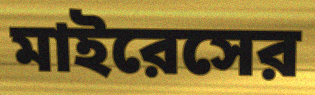
মাইরেসের